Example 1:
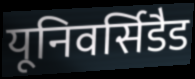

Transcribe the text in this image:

यूनिवर्सिडैड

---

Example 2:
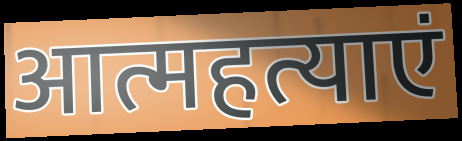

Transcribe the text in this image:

आत्महत्याएं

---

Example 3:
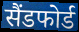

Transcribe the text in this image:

सैंडफोर्ड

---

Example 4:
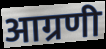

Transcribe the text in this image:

आग्रणी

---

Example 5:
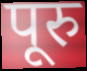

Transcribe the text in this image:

पूरु